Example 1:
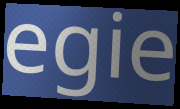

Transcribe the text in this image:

egie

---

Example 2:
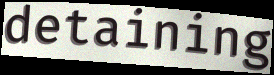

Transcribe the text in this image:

detaining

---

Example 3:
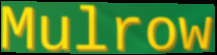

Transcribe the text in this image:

Mulrow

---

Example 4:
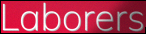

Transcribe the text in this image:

Laborers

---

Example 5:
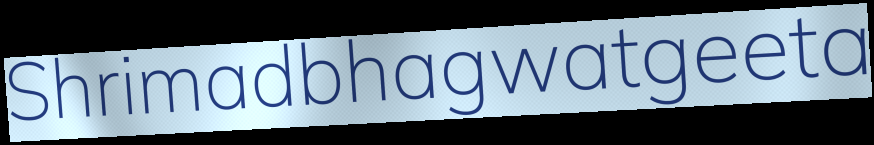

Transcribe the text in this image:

Shrimadbhagwatgeeta